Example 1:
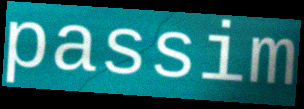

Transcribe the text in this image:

passim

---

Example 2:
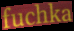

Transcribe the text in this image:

fuchka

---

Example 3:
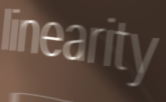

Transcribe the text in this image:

linearity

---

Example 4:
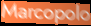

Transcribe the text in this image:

Marcopolo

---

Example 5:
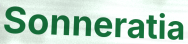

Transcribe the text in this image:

Sonneratia